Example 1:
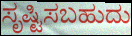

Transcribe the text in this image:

ಸೃಷ್ಟಿಸಬಹುದು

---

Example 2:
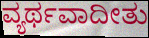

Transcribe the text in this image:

ವ್ಯರ್ಥವಾದೀತು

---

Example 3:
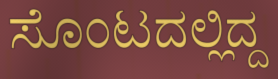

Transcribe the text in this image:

ಸೊಂಟದಲ್ಲಿದ್ದ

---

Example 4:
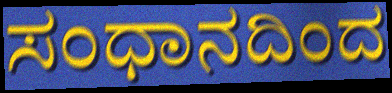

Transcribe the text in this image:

ಸಂಧಾನದಿಂದ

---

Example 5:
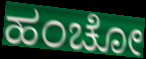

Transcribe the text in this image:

ಹಂಚೋ